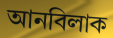
আনবিলাক